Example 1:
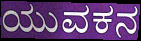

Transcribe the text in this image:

ಯುವಕನ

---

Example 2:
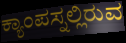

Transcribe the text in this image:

ಕ್ಯಾಂಪಸ್ನಲ್ಲಿರುವ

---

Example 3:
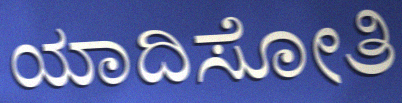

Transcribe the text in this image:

ಯಾದಿಸೋತಿ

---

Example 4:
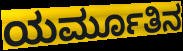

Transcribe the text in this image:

ಯರ್ಮೂತಿನ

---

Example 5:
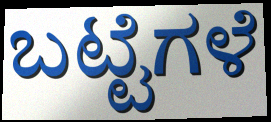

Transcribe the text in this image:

ಬಟ್ಟೆಗಳೆ